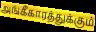
அங்கீகாரத்துக்கும்